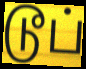
டூப்